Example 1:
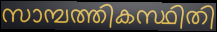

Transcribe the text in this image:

സാമ്പത്തികസ്ഥിതി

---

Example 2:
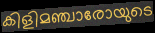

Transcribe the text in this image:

കിളിമഞ്ചാരോയുടെ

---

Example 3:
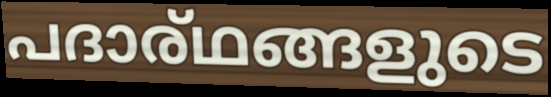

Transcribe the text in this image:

പദാര്ഥങ്ങളുടെ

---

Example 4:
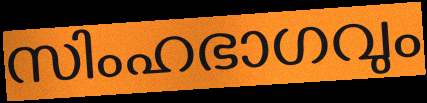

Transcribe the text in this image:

സിംഹഭാഗവും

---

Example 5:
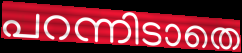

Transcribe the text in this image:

പറന്നിടാതെ